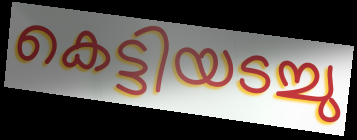
കെട്ടിയടച്ചു